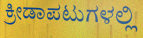
ಕ್ರೀಡಾಪಟುಗಳಲ್ಲಿ